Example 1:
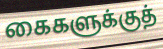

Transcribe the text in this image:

கைகளுக்குத்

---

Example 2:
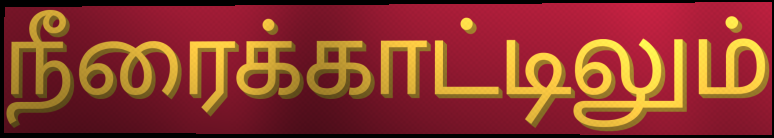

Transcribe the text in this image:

நீரைக்காட்டிலும்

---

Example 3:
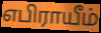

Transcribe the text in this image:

எபிராயீம்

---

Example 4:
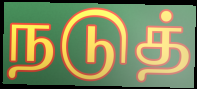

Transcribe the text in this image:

நடுத்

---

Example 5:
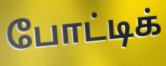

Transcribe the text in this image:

போட்டிக்